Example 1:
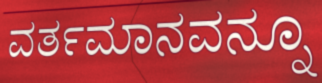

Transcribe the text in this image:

ವರ್ತಮಾನವನ್ನೂ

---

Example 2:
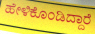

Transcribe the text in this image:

ಹೇಳಿಕೊಂಡಿದ್ದಾರೆ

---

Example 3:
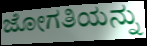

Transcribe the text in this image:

ಜೋಗತಿಯನ್ನು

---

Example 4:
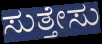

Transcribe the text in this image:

ಸುತ್ತೇಸು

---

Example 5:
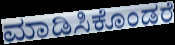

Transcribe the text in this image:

ಮಾಡಿಸಿಕೊಂಡರೆ